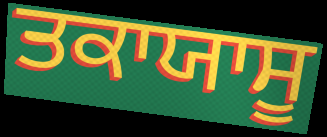
ਤਕਾਯਾਸੂ